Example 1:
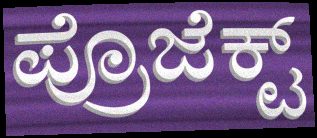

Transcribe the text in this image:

ಪ್ರೊಜೆಕ್ಟ್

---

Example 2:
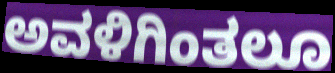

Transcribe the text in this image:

ಅವಳಿಗಿಂತಲೂ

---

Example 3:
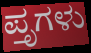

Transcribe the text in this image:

ಪ್ತೃಗಳು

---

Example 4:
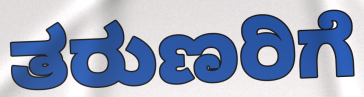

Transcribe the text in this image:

ತರುಣರಿಗೆ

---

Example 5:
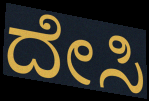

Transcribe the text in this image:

ದೇಸಿ